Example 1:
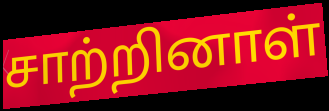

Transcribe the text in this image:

சாற்றினாள்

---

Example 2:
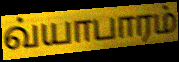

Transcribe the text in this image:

வ்யாபாரம்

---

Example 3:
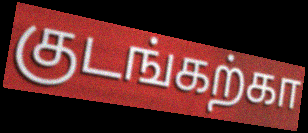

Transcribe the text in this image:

குடங்கற்கா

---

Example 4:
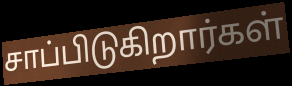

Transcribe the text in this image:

சாப்பிடுகிறார்கள்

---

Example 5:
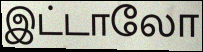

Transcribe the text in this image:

இட்டாலோ